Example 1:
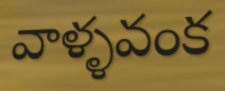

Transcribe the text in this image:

వాళ్ళవంక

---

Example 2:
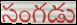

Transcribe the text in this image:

సంగడు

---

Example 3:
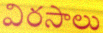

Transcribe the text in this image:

విరసాలు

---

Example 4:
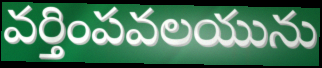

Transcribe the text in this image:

వర్తింపవలయును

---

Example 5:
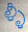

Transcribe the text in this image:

ళ్ళీ